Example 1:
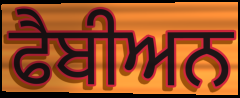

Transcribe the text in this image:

ਫੈਬੀਅਨ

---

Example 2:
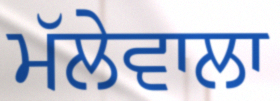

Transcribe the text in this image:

ਮੱਲੇਵਾਲਾ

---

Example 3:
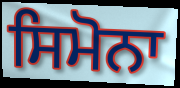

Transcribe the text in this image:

ਸਿਮੋਨਾ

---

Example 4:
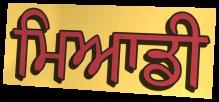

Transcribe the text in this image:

ਮਿਆਡੀ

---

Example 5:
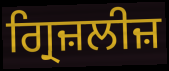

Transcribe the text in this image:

ਗ੍ਰਿਜ਼ਲੀਜ਼